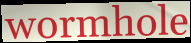
wormhole